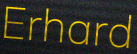
Erhard